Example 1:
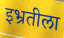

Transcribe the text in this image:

इभ्रतीला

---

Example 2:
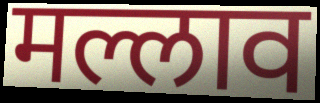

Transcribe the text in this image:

मल्लाव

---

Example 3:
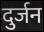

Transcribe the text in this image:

दुर्जन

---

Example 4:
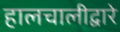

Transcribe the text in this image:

हालचालीद्वारे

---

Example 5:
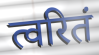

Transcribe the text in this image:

त्वरितं